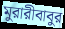
মুরারীবাবুর